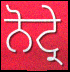
ਨੋਟ੍ਰੇ